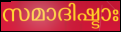
സമാദിഷ്ടാഃ